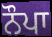
ਨੌਪਾ